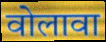
वोलावा